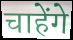
चाहेंगे